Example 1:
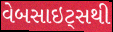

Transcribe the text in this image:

વેબસાઇટ્સથી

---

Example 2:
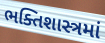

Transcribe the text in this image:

ભક્તિશાસ્ત્રમાં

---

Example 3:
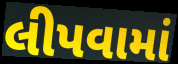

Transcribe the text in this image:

લીપવામાં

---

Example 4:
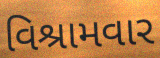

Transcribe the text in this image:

વિશ્રામવાર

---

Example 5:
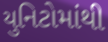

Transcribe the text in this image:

યુનિટોમાંથી